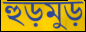
হুড়মুড়